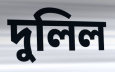
দুলিল